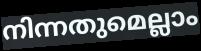
നിന്നതുമെല്ലാം